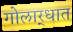
गोलार्धात